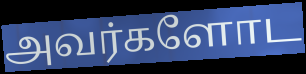
அவர்களோட